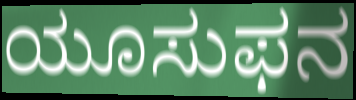
ಯೂಸುಫನ